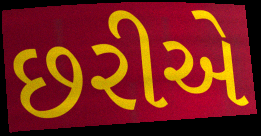
છરીએ